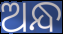
ଅନ୍ଧ